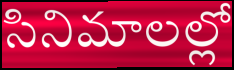
సినిమాలల్లో